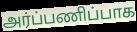
அர்ப்பணிப்பாக